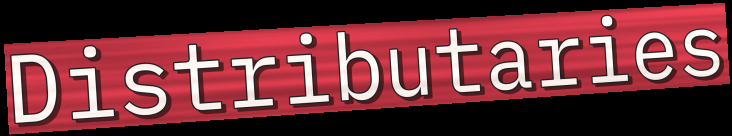
Distributaries